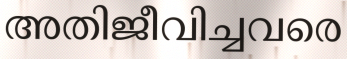
അതിജീവിച്ചവരെ